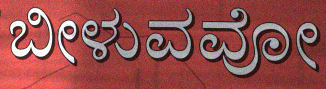
ಬೀಳುವವೋ